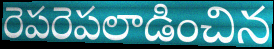
రెపరెపలాడించిన